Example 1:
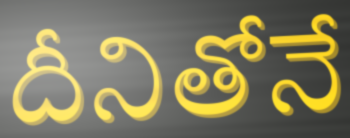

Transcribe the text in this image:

దీనితోనే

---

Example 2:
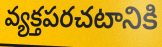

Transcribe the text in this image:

వ్యక్తపరచటానికి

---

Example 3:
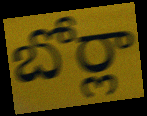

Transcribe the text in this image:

బోర్లా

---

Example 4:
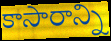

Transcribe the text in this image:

కాసారాన్ని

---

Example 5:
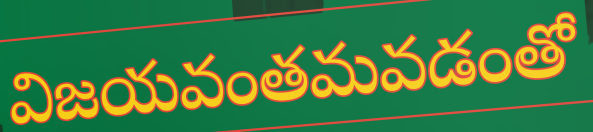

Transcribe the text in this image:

విజయవంతమవడంతో